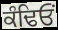
ਕੰਢਿਓਂ